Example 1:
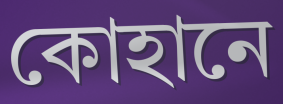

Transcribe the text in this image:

কোহানে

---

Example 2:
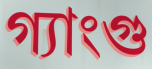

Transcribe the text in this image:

গ্যাংগু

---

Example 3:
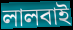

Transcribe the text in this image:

লালবাই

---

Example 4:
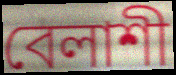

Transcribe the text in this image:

বেলাশী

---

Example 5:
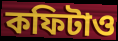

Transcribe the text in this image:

কফিটাও